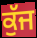
ਕੁੱਜ